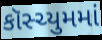
કૉસ્ચ્યુમમાં